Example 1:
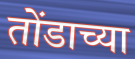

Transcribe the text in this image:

तोंडाच्या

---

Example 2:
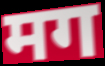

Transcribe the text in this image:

मग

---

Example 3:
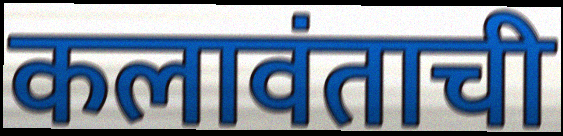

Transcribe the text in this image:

कलावंताची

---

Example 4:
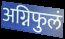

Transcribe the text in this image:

अग्निफुलं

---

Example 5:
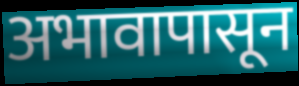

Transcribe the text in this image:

अभावापासून